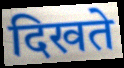
दिखते